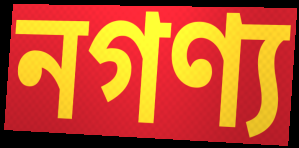
নগণ্য